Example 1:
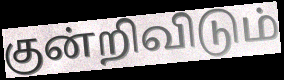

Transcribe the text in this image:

குன்றிவிடும்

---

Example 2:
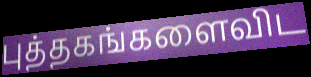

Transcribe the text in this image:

புத்தகங்களைவிட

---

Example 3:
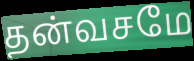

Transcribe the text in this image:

தன்வசமே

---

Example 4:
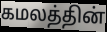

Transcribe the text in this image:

கமலத்தின்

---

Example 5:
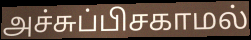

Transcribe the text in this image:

அச்சுப்பிசகாமல்